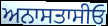
ਅਨਾਸਤਾਸੀਓ